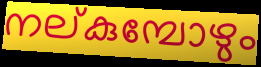
നല്കുമ്പോഴും